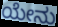
ಯೇನು